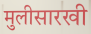
मुलीसारखी